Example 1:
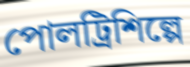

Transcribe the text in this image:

পোলট্রিশিল্পে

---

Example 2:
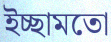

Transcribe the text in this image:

ইচ্ছামতো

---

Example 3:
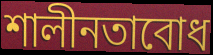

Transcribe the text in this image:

শালীনতাবোধ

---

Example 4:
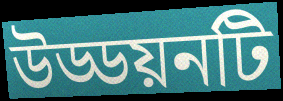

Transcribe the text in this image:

উড্ডয়নটি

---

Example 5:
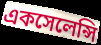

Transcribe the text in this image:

একসেলেন্সি